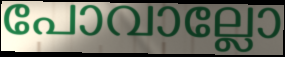
പോവാല്ലോ